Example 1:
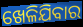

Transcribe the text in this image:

ଖେଳିଯିବାର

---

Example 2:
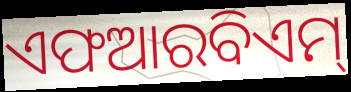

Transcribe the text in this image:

ଏଫଆରବିଏମ୍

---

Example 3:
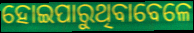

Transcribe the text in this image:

ହୋଇପାରୁଥିବାବେଳେ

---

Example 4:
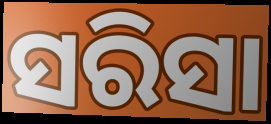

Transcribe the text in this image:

ସରିସା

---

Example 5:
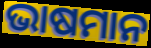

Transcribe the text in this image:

ଭାଷମାନ